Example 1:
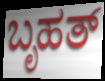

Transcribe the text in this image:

ಬೃಹತ್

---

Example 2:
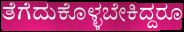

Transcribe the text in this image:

ತೆಗೆದುಕೊಳ್ಳಬೇಕಿದ್ದರೂ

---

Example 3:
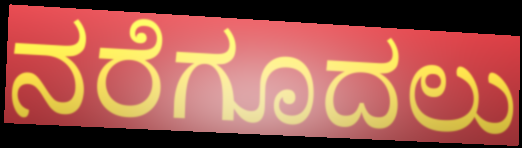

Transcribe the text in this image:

ನರೆಗೂದಲು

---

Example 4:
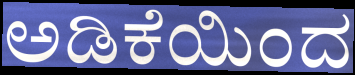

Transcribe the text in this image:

ಅಡಿಕೆಯಿಂದ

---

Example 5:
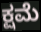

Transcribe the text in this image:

ಕ್ಷಮೆ